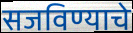
सजविण्याचे